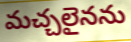
మచ్చలైనను